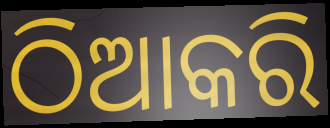
ଠିଆକରି